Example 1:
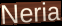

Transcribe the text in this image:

Neria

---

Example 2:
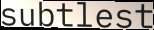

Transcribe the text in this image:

subtlest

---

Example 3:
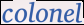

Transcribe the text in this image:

colonel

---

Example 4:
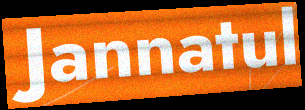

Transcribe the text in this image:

Jannatul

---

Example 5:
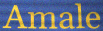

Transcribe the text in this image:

Amale